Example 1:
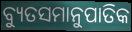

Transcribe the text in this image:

ବ୍ୟୁତସମାନୁପାତିକ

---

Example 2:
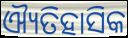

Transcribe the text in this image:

ଐ୍ୟତିହାସିକ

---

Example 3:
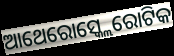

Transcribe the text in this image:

ଆଥେରୋସ୍କ୍ଲେରୋଟିକ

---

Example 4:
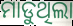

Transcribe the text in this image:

ମାଡୁଥିଲା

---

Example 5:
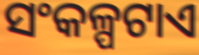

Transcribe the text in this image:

ସଂକଳ୍ପଟାଏ